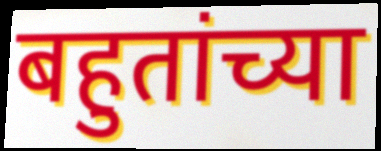
बहुतांच्या